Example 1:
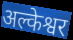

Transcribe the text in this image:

अल्केश्वर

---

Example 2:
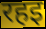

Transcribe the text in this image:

रहइ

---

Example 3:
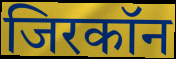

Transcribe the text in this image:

जिरकॉन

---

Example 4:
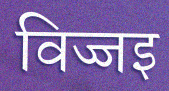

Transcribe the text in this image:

विज्जइ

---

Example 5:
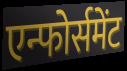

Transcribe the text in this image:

एन्फोर्समेंट